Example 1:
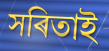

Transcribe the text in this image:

সৰিতাই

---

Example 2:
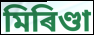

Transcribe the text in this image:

মিৰিণ্ডা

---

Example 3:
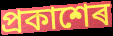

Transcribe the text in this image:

প্ৰকাশেৰ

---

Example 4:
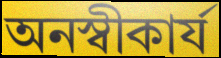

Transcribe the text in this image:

অনস্বীকাৰ্য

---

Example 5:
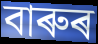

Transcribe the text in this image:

বাৰুৰ